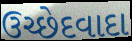
ઉચ્છેદવાદા